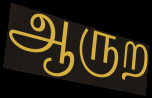
ஆருற